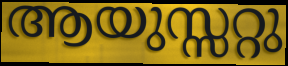
ആയുസ്സറ്റു